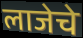
लाजेचे